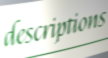
descriptions